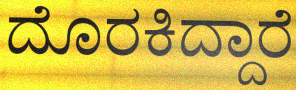
ದೊರಕಿದ್ದಾರೆ